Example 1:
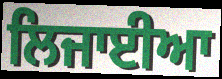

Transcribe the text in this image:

ਲਿਜਾਈਆ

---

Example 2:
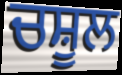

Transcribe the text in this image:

ਚਸ਼ੂਲ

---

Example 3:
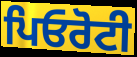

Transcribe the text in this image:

ਪਿਓਰੋਟੀ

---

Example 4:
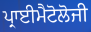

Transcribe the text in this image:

ਪ੍ਰਾਈਮੈਟੋਲੋਜੀ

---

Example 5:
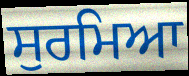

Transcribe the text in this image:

ਸੁਰਮਿਆ